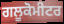
ਗਲੂਕੋਮੀਟਰ